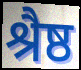
श्रैष्ठ